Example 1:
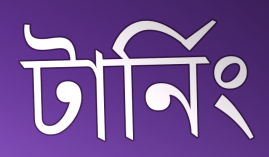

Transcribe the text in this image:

টাৰ্নিং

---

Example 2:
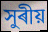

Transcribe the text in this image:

সুৰীয়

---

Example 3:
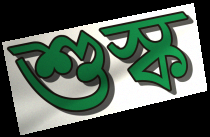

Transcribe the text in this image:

শুস্ক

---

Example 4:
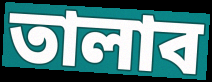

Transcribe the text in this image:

তালাব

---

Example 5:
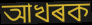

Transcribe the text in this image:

আখৰক